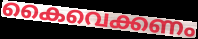
കൈവെക്കണം